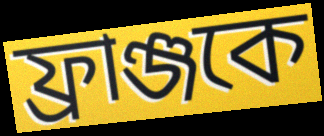
ফ্রাঞ্জকে